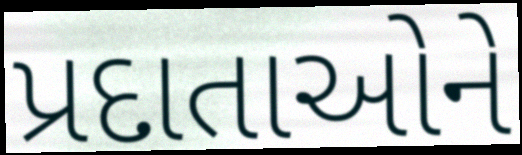
પ્રદાતાઓને